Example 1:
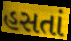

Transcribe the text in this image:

હસતાં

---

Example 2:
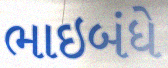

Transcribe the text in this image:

ભાઇબંધે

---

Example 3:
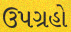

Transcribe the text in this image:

ઉપગ્રહો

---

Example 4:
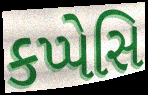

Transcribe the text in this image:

કપ્પેસિ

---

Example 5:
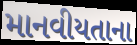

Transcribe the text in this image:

માનવીયતાના